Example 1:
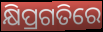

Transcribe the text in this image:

କ୍ଷିପ୍ରଗତିରେ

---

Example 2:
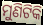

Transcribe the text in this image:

ମୁଣିଟିକି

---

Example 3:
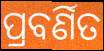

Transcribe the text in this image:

ପ୍ରବର୍ଣିତ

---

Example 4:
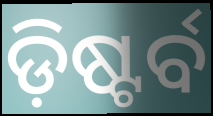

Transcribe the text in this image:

ଡ଼ିଷ୍ଟର୍ବ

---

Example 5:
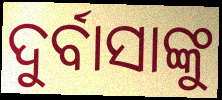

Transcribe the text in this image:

ଦୁର୍ବାସାଙ୍କୁ